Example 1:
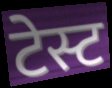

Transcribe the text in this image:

टेस्‍ट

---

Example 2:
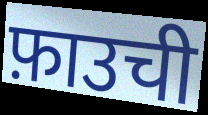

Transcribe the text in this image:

फ़ाउची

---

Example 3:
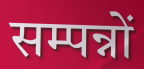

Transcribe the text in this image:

सम्पन्नों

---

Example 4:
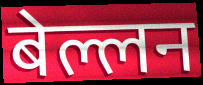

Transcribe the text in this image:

बेल्लन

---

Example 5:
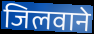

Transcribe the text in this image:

जिलवाने